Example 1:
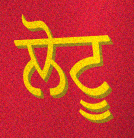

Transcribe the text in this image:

ਲੋਟੂ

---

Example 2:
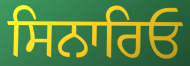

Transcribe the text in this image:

ਸਿਨਾਰਿਓ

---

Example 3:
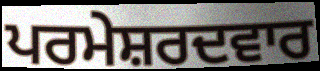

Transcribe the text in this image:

ਪਰਮੇਸ਼ਰਦਵਾਰ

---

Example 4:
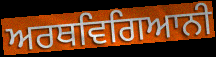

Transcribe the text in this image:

ਅਰਥਵਿਗਿਆਨੀ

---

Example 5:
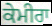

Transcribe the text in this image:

ਕੇਮੀਰਾ